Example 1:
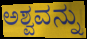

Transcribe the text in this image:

ಅಶ್ವವನ್ನು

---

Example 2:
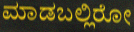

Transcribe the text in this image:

ಮಾಡಬಲ್ಲಿರೋ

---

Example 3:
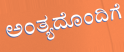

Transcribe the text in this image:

ಅಂತ್ಯದೊಂದಿಗೆ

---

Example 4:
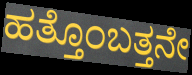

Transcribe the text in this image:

ಹತ್ತೊಂಬತ್ತನೇ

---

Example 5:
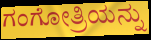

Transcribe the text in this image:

ಗಂಗೋತ್ರಿಯನ್ನು